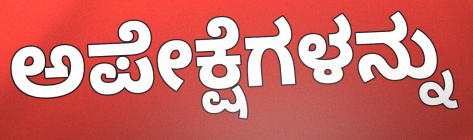
ಅಪೇಕ್ಷೆಗಳನ್ನು